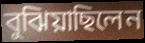
বুঝিয়াছিলেন